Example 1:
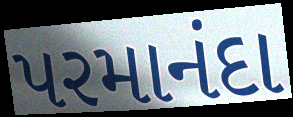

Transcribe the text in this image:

પરમાનંદા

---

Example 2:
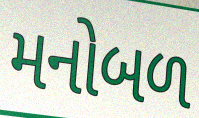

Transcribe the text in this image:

મનોબળ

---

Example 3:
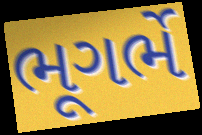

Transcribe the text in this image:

ભૂગર્ભે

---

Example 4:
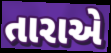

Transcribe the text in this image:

તારાએ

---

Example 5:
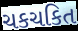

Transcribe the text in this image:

ચકચકિત